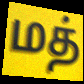
மத்